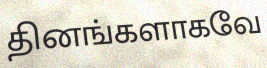
தினங்களாகவே